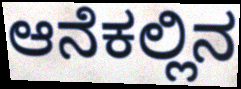
ಆನೆಕಲ್ಲಿನ